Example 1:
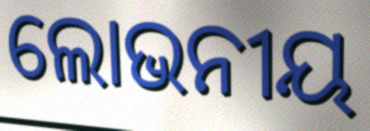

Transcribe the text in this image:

ଲୋଭନୀୟ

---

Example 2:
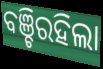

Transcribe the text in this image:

ବଞ୍ଚିରହିଲା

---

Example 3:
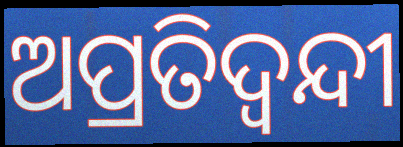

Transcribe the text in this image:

ଅପ୍ରତିଦ୍ବନ୍ଦୀ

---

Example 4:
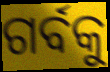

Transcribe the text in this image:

ଗର୍ବକୁ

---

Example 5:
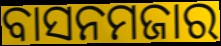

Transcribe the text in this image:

ବାସନମଜାର